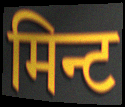
मिन्ट